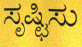
ಸೃಷ್ಟಿಸು